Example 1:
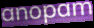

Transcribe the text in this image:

anopam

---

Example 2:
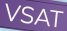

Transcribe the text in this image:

VSAT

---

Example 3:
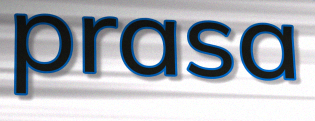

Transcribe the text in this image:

prasa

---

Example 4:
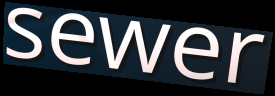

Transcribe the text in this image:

sewer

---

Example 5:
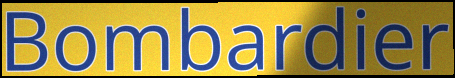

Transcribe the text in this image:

Bombardier